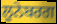
ਲੂਨੇਬਰਗ